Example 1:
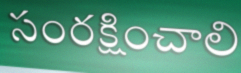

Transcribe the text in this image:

సంరక్షించాలి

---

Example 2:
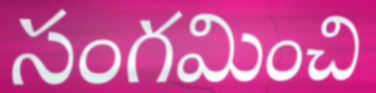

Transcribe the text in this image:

సంగమించి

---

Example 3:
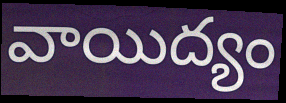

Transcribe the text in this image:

వాయిద్యం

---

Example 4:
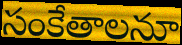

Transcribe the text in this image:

సంకేతాలనూ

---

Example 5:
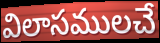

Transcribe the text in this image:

విలాసములచే